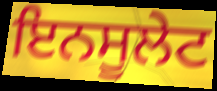
ਇਨਸੂਲੇਟ